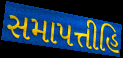
સમાપત્તીહિ